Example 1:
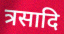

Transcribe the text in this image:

त्रसादि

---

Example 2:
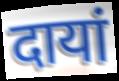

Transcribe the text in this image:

दायां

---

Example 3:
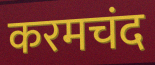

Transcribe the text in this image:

करमचंद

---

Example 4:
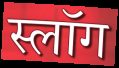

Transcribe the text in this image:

स्लॉग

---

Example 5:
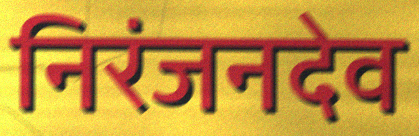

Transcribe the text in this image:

निरंजनदेव